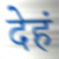
देहं